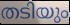
തടിയും